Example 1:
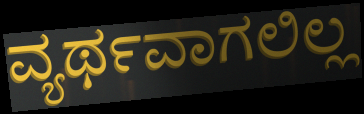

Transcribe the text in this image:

ವ್ಯರ್ಥವಾಗಲಿಲ್ಲ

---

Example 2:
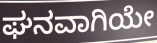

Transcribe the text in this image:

ಘನವಾಗಿಯೇ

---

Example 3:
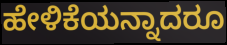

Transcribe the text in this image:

ಹೇಳಿಕೆಯನ್ನಾದರೂ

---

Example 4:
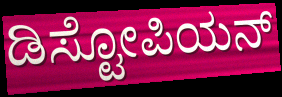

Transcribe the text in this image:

ಡಿಸ್ಟೋಪಿಯನ್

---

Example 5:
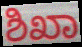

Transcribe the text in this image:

ಶಿಖಾ